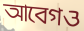
আবেগও